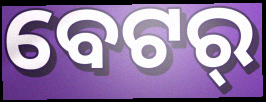
ବେଟର୍